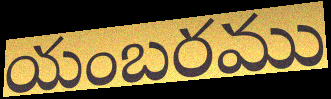
యంబరము